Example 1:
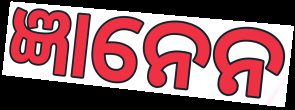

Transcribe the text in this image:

ଜ୍ଞାନେନ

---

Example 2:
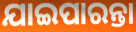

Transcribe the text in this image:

ଯାଇପାରନ୍ତା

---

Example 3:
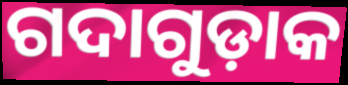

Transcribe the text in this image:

ଗଦାଗୁଡ଼ାକ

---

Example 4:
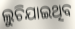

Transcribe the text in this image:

ଲୁଚିଯାଇଥିବ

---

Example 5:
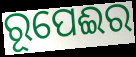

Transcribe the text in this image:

ରୂପେଈର